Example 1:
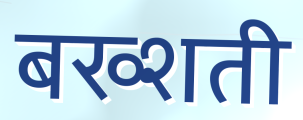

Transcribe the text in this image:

बख्शती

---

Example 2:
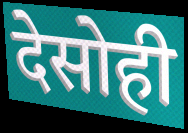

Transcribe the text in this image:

देसोही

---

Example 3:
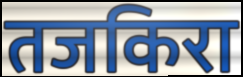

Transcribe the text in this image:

तजकिरा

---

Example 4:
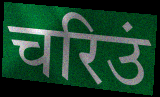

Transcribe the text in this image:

चरिउं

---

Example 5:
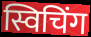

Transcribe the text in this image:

स्विचिंग